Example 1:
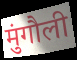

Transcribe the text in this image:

मुंगौली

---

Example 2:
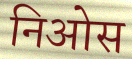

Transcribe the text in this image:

निओस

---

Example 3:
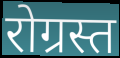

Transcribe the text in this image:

रोग्रस्त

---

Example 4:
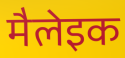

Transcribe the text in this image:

मैलेइक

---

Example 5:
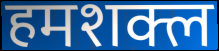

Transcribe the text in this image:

हमशक्ल